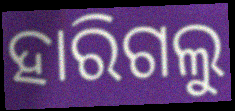
ହାରିଗଲୁ